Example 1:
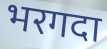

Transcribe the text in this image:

भरगदा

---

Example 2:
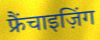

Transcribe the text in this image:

फ्रैंचाइज़िंग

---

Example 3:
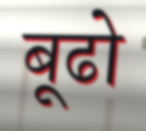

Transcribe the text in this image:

बूढो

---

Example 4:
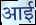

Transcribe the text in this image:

आई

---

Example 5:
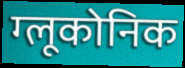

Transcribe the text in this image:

ग्लूकोनिक